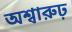
অশ্বারুঢ়